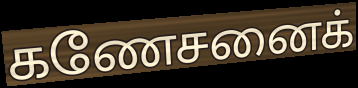
கணேசனைக்